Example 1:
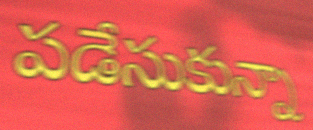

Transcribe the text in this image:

పడేసుకున్నా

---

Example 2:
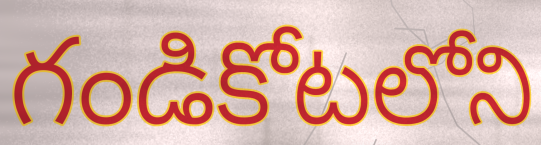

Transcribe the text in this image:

గండికోటలోని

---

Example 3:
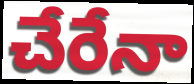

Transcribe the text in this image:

చేరేనా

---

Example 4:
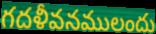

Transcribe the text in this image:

గదళీవనములందు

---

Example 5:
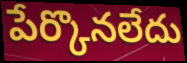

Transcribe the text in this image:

పేర్కొనలేదు